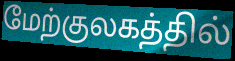
மேற்குலகத்தில்